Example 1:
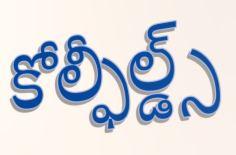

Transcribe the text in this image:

కోల్ఫీల్డ్స్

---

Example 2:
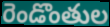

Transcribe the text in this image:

రెండొంతుల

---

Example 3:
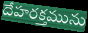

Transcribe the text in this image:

దేహరక్తమును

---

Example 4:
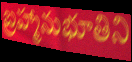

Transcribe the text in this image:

బ్రహ్మానుభూతిని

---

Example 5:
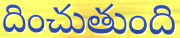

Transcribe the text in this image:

దించుతుంది